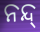
ନନ୍ଦ୍